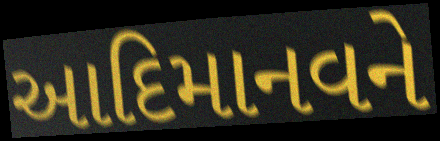
આદિમાનવને